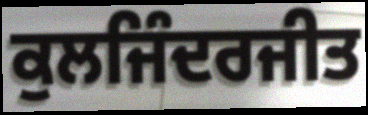
ਕੁਲਜਿੰਦਰਜੀਤ